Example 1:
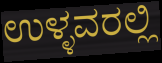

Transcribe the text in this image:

ಉಳ್ಳವರಲ್ಲಿ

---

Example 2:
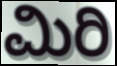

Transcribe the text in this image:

ಮಿರಿ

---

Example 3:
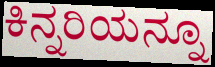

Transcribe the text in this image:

ಕಿನ್ನರಿಯನ್ನೂ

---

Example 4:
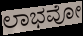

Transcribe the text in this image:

ಲಾಭವೋ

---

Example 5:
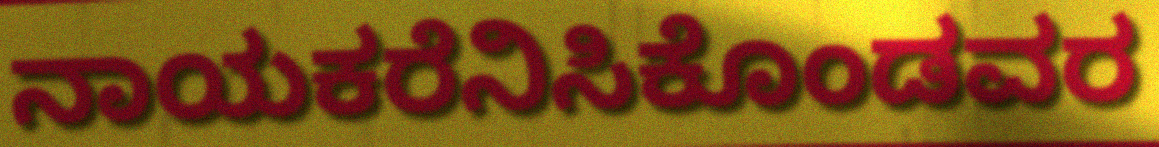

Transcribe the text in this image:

ನಾಯಕರೆನಿಸಿಕೊಂಡವರ